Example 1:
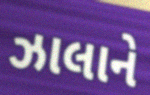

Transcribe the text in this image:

ઝાલાને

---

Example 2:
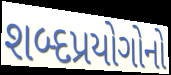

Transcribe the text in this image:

શબ્દપ્રયોગોનો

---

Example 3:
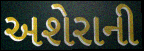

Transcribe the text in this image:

અશેરાની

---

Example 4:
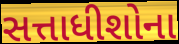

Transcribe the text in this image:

સત્તાધીશોના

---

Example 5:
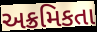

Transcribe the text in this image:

અક્રમિકતા